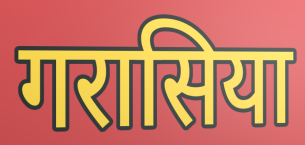
गरासिया